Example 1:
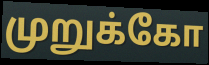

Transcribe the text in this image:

முறுக்கோ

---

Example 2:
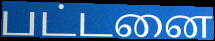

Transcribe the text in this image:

பட்டனை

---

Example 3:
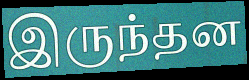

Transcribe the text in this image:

இருந்தன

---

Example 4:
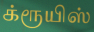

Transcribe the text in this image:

க்ரூயிஸ்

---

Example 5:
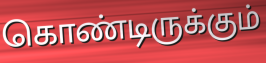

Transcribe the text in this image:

கொண்டிருக்கும்